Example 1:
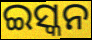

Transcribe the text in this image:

ଇସ୍କନ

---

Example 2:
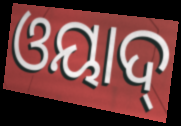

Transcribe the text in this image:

ଓୟାଦ୍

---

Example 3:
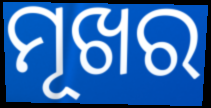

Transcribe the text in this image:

ମୂଖର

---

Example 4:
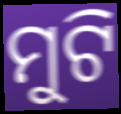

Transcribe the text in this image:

ମୁଟି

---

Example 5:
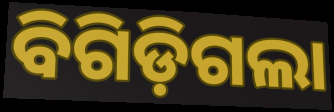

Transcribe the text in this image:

ବିଗିଡ଼ିଗଲା